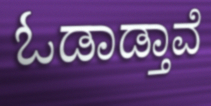
ಓಡಾಡ್ತಾವೆ